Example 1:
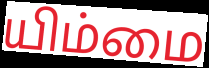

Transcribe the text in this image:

யிம்மை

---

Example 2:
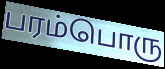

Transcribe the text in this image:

பரம்பொரு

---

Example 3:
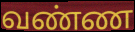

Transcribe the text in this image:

வண்ண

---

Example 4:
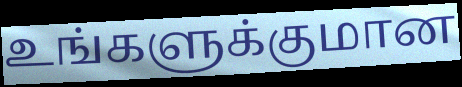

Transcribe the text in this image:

உங்களுக்குமான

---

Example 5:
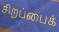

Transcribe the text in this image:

சிறப்பைக்